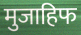
मुजाहिफ